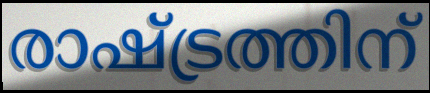
രാഷ്ട്രത്തിന്